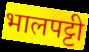
भालपट्टी